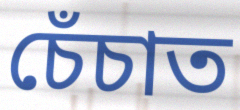
চেঁচাত